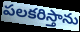
పలకరిస్తాను